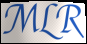
MLR